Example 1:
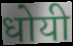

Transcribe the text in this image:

धोयी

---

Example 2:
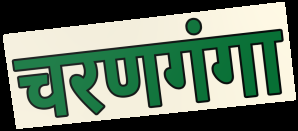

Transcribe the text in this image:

चरणगंगा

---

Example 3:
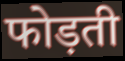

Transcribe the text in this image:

फोड़ती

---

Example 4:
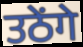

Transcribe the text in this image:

उठेंगे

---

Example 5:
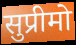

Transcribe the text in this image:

सुप्रीमो